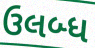
ઉલબ્ધ